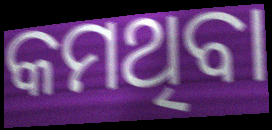
କମଥିବା